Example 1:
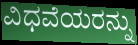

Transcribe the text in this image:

ವಿಧವೆಯರನ್ನು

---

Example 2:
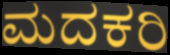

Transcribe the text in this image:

ಮದಕರಿ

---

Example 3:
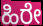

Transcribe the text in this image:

ಹಿರೇ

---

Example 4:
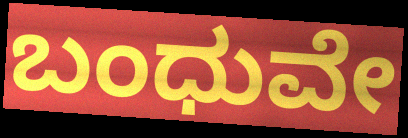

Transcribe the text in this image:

ಬಂಧುವೇ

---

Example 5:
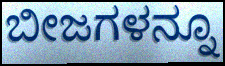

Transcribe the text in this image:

ಬೀಜಗಳನ್ನೂ